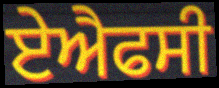
ਏਐਫਸੀ